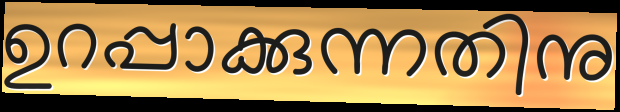
ഉറപ്പാക്കുന്നതിനു